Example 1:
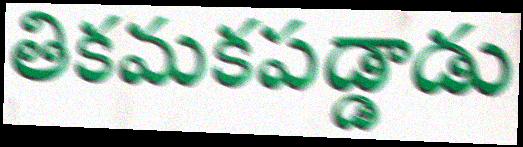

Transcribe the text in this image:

తికమకపడ్డాడు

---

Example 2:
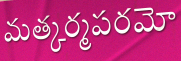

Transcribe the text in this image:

మత్కర్మపరమో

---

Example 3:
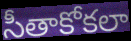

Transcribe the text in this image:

సీతాకోకలా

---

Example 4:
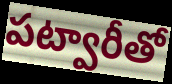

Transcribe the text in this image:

పట్వారీతో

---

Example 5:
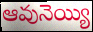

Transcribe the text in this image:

ఆవునెయ్యి